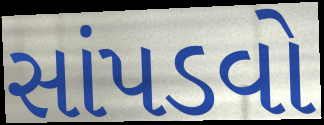
સાંપડવો